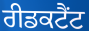
ਰੀਡਕਟੈਂਟ